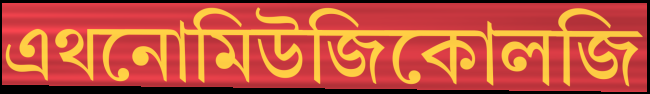
এথনোমিউজিকোলজি